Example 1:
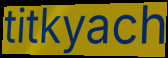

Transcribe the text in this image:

titkyach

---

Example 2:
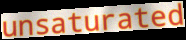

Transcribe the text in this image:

unsaturated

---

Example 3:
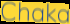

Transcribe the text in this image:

Chaka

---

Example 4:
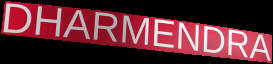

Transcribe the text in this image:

DHARMENDRA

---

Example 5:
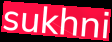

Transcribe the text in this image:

sukhni